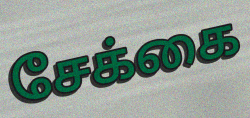
சேக்கை